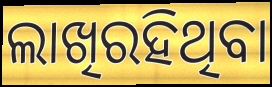
ଲାଖିରହିଥିବା